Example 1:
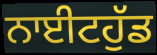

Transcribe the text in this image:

ਨਾਈਟਹੁੱਡ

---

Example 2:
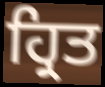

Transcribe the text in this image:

ਹ੍ਰਿਤ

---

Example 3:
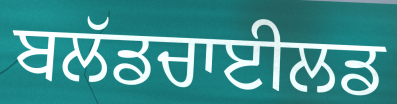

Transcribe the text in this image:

ਬਲੱਡਚਾਈਲਡ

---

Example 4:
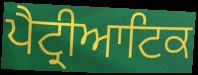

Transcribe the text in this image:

ਪੈਟ੍ਰੀਆਟਿਕ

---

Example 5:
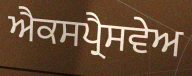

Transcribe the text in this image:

ਐਕਸਪ੍ਰੈਸਵੇਅ